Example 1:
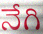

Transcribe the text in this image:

నేగి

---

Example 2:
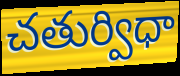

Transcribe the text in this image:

చతుర్విధా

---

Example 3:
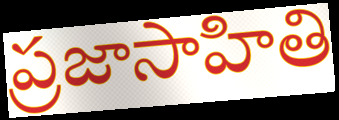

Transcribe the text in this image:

ప్రజాసాహితి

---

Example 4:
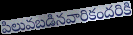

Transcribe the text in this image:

పిలువబడినవారికందరికి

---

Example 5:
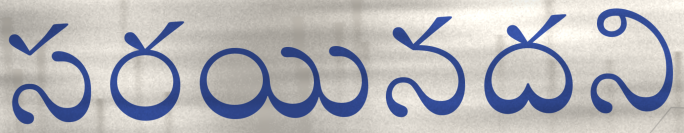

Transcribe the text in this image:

సరయినదని